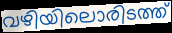
വഴിയിലൊരിടത്ത്